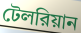
টেলরিয়ান